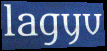
lagyu